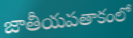
జాతీయపతాకంలో